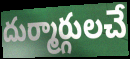
దుర్మార్గులచే